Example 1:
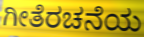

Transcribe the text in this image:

ಗೀತೆರಚನೆಯ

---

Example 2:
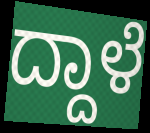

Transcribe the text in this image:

ದ್ದಾಳೆ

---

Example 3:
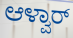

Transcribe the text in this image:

ಆಳ್ವಾರ್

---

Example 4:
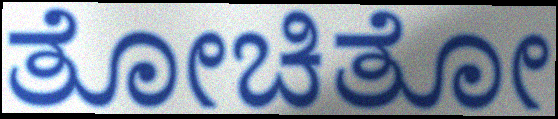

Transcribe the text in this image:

ತೋಚಿತೋ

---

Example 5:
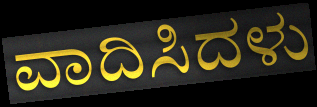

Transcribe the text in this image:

ವಾದಿಸಿದಳು